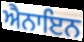
ਐਨਾਇਨ